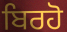
ਬਿਰਹੋ